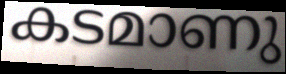
കടമാണു